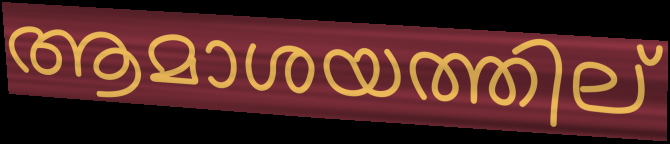
ആമാശയത്തില്